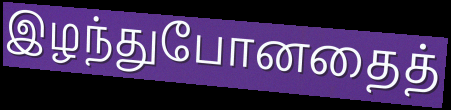
இழந்துபோனதைத்